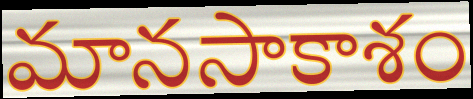
మానసాకాశం